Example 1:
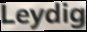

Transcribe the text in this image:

Leydig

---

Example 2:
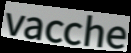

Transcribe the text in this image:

vacche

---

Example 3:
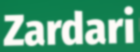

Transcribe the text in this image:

Zardari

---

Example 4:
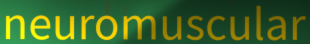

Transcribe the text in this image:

neuromuscular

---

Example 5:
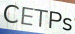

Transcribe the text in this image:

CETPs